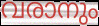
വരാനും